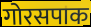
गोरसपाक